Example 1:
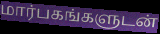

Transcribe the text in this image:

மார்பகங்களுடன்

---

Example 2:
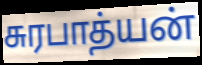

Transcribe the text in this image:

சுரபாத்யன்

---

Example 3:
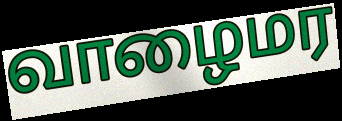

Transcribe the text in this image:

வாழைமர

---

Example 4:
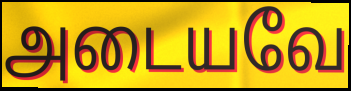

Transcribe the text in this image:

அடையவே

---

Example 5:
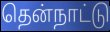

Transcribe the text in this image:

தென்நாட்டு